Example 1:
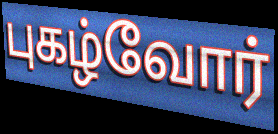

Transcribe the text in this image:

புகழ்வோர்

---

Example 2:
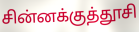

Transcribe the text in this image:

சின்னக்குத்தூசி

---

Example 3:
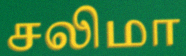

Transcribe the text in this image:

சலிமா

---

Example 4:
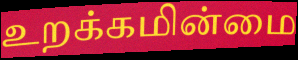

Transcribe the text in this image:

உறக்கமின்மை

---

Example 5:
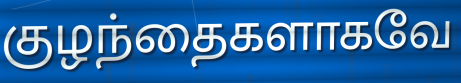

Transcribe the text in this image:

குழந்தைகளாகவே